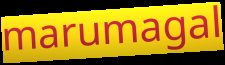
marumagal